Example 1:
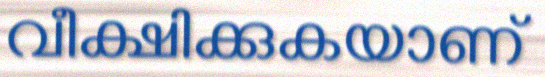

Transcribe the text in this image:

വീക്ഷിക്കുകയാണ്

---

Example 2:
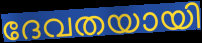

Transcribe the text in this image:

ദേവതയായി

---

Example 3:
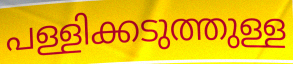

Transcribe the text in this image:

പള്ളിക്കടുത്തുള്ള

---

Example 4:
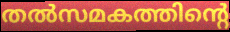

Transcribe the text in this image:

തൽസമകത്തിന്റെ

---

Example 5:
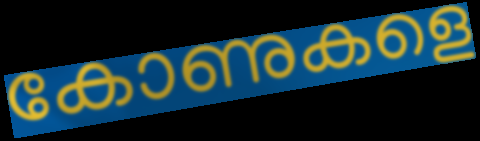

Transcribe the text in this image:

കോണുകളെ